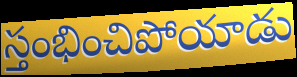
స్తంభించిపోయాడు